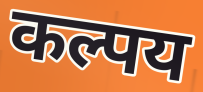
कल्पय